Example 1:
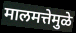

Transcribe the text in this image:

मालमत्तेमुळे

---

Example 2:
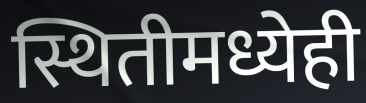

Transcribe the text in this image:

स्थितीमध्येही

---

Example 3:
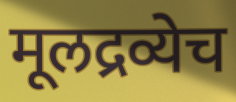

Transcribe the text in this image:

मूलद्रव्येच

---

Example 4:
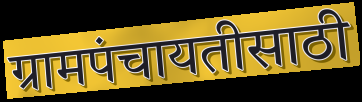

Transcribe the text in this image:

ग्रामपंचायतीसाठी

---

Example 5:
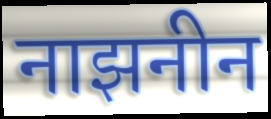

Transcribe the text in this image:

नाझनीन